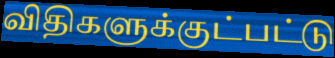
விதிகளுக்குட்பட்டு